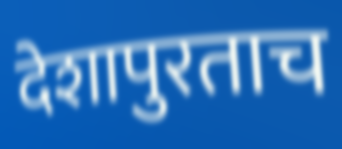
देशापुरताच